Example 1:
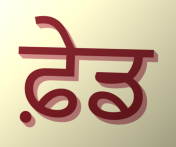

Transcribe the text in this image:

ਫ਼ੇਡ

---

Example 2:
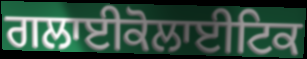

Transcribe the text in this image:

ਗਲਾਈਕੋਲਾਈਟਿਕ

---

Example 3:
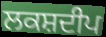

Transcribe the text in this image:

ਲਕਸ਼ਦੀਪ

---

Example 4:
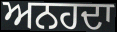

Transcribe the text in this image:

ਅਨਹਦਾ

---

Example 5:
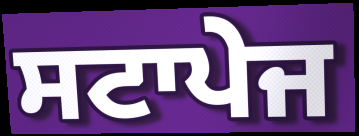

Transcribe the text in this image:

ਸਟਾਪੇਜ